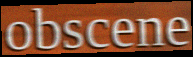
obscene